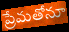
ప్రేమతోనూ